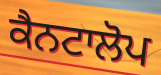
ਕੈਨਟਾਲੋਪ